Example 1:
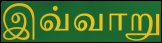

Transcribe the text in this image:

இவ்வாறு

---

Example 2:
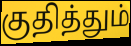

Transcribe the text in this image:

குதித்தும்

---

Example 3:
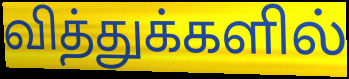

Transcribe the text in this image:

வித்துக்களில்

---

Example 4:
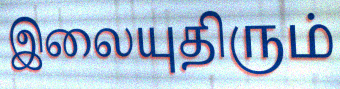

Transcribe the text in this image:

இலையுதிரும்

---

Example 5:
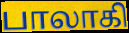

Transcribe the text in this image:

பாலாகி